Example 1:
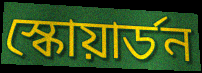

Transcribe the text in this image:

স্কোয়ার্ডন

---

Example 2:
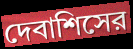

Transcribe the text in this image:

দেবাশিসের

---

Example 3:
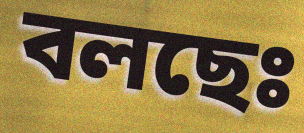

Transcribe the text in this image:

বলছেঃ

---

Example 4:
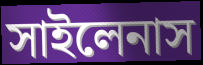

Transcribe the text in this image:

সাইলেনাস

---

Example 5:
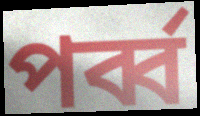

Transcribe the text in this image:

পর্ব্ব